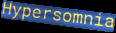
Hypersomnia